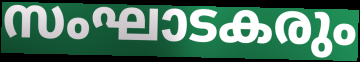
സംഘാടകരും